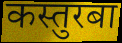
कस्तुरबा